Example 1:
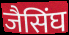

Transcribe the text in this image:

जैसिंघ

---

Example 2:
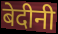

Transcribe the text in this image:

बेदीनी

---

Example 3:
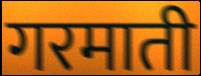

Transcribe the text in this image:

गरमाती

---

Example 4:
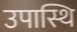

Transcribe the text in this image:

उपास्थि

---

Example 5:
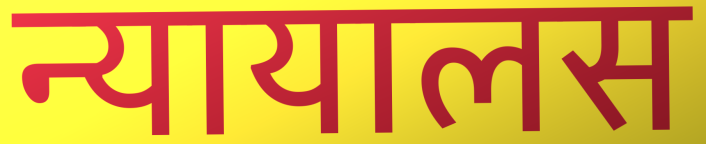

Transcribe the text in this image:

न्यायालस